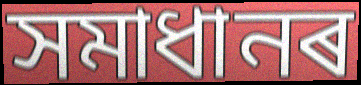
সমাধানৰ